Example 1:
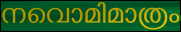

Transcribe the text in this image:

നവൊമിമാത്രം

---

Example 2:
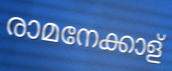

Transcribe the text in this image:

രാമനേക്കാള്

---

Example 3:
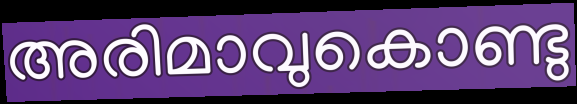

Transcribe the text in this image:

അരിമാവുകൊണ്ടു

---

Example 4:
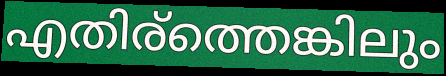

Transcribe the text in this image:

എതിര്ത്തെങ്കിലും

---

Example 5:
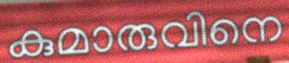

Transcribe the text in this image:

കുമാരുവിനെ